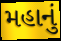
મહાનું